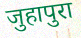
जुहापुरा